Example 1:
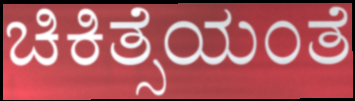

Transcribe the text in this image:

ಚಿಕಿತ್ಸೆಯಂತೆ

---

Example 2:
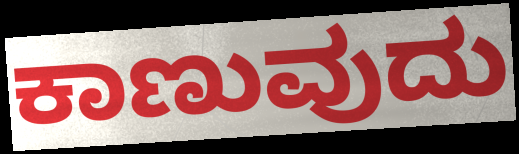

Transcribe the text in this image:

ಕಾಣುವುದು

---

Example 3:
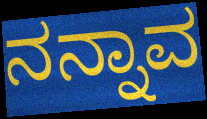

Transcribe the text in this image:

ನನ್ನಾವ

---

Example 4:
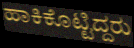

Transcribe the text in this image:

ಹಾಕಿಕೊಟ್ಟಿದ್ದರು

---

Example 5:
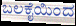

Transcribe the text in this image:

ಬಲಕೈಯಿಂದ